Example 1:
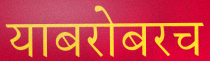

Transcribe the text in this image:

याबरोबरच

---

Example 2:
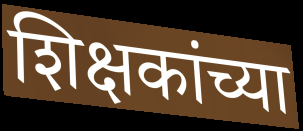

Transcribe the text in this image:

शिक्षकांच्या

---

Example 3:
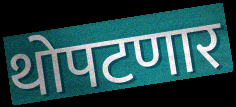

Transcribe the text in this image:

थोपटणार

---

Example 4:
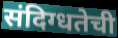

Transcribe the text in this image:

संदिग्धतेची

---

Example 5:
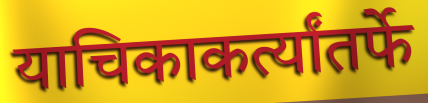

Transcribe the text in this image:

याचिकाकर्त्यांतर्फे